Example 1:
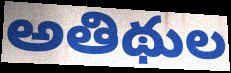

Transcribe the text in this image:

అతిథుల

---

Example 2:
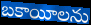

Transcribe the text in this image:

బకాయీలను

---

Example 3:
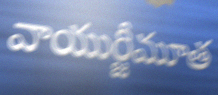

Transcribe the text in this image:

వాయుర్జీమూత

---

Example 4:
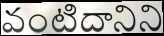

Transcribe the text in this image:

వంటిదానిని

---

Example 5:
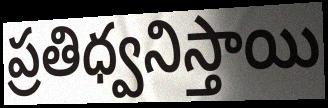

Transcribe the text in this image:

ప్రతిధ్వనిస్తాయి